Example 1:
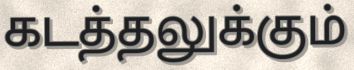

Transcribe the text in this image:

கடத்தலுக்கும்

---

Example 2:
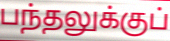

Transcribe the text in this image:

பந்தலுக்குப்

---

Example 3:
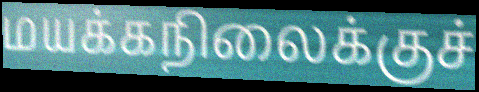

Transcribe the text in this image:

மயக்கநிலைக்குச்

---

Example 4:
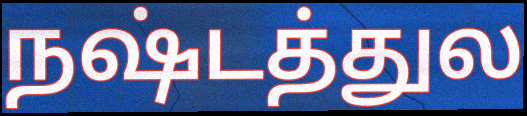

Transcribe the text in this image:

நஷ்டத்துல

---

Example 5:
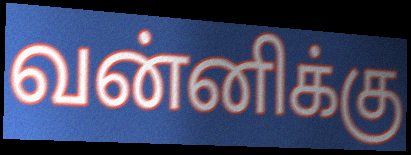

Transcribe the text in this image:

வன்னிக்கு